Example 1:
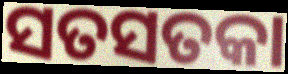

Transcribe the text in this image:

ସତସତକା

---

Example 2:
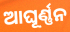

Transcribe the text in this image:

ଆଘୂର୍ଣ୍ଣନ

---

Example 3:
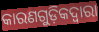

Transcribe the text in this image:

କାରଣଗୁଡ଼ିକଦ୍ବାରା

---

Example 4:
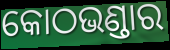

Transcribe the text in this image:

କୋଠଭଣ୍ଡାର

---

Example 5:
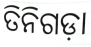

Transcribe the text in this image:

ତିନିଗଡ଼ା